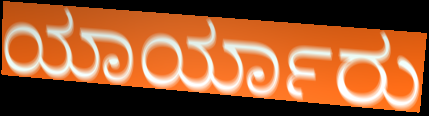
ಯಾರ್ಯಾರು